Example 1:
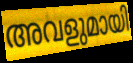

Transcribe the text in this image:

അവളുമായി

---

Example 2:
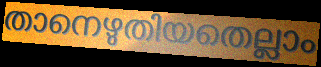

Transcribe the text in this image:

താനെഴുതിയതെല്ലാം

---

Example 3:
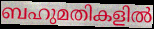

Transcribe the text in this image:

ബഹുമതികളിൽ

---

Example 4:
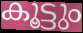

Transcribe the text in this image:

കൂട്ടും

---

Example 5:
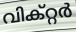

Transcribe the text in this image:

വിക്റ്റർ